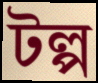
টল্প